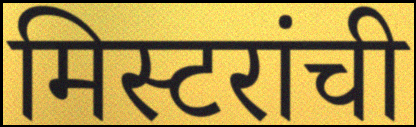
मिस्टरांची